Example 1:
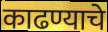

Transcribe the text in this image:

काढण्याचे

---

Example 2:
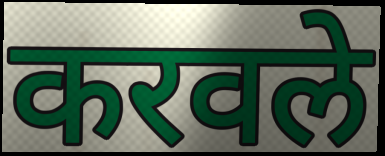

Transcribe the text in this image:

करवले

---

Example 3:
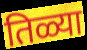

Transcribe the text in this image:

तिळ्या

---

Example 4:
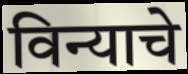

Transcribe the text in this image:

विन्याचे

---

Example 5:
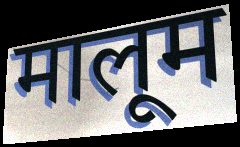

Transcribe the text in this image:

मालूम